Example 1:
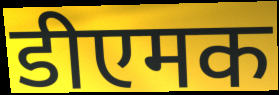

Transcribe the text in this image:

डीएमक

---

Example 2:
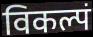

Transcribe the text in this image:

विकल्पं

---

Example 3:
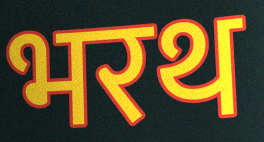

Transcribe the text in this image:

भरथ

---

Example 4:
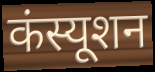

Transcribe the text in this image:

कंस्यूशन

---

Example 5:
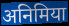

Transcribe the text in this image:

अनिमिया